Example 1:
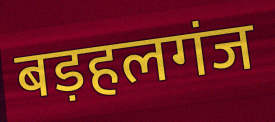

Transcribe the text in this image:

बड़हलगंज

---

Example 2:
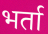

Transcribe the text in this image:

भर्ता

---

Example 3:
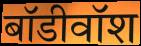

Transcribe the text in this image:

बॉडीवॉश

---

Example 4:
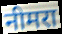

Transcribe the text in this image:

नीमरा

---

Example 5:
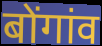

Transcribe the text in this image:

बोंगांव